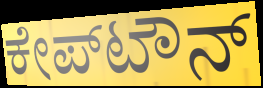
ಕೇಪ್‌ಟೌನ್